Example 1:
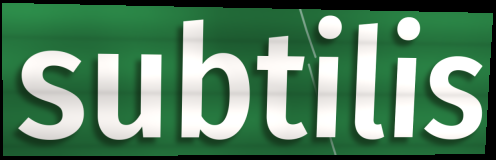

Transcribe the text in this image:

subtilis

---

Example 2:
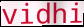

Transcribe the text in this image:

vidhi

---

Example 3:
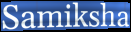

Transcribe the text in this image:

Samiksha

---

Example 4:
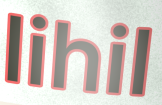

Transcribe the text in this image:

lihil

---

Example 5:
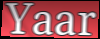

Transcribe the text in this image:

Yaar